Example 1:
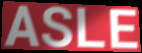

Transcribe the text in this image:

ASLE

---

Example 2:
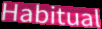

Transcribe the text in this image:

Habitual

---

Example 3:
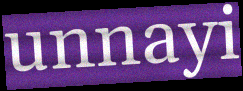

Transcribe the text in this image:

unnayi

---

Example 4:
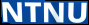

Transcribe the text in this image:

NTNU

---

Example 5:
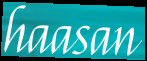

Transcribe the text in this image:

haasan